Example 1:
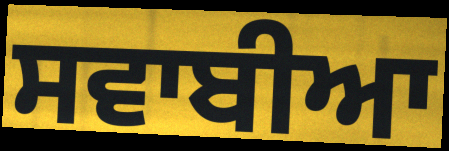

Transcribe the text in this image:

ਸਵਾਬੀਆ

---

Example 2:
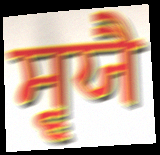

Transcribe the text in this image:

ਸ੍ਵਯੈ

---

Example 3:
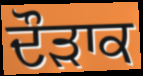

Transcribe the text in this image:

ਦੌੜਾਕ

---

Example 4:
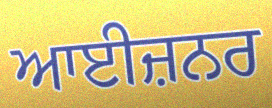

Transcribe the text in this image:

ਆਈਜ਼ਨਰ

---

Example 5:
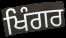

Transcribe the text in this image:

ਖਿੰਗਰ